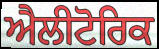
ਐਲੀਟੋਰਿਕ